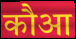
कौआ